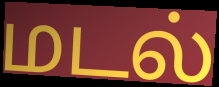
மடல்